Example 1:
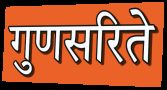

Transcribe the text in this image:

गुणसरिते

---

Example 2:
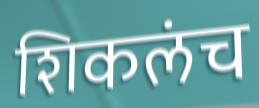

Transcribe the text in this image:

शिकलंच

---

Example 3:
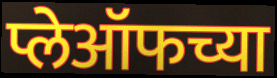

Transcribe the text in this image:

प्लेऑफच्या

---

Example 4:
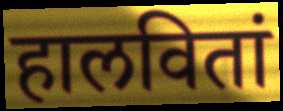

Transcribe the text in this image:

हालवितां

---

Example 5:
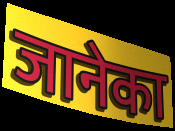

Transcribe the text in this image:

जानेका